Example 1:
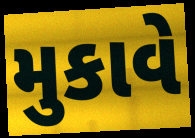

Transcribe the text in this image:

મુકાવે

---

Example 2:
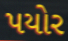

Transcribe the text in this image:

પયોર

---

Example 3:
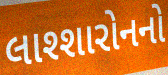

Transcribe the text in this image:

લાશ્શારોનનો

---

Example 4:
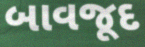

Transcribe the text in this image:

બાવજૂદ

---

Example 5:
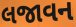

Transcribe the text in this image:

લજાવન